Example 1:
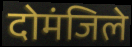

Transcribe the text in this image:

दोमंजिले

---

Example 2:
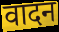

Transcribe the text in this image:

वादन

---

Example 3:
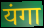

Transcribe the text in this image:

यंगा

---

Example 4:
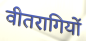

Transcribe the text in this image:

वीतरागियों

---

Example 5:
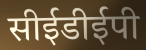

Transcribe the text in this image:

सीईडीईपी